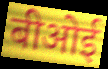
बीओई